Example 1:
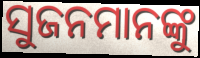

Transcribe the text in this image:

ସୁଜନମାନଙ୍କୁ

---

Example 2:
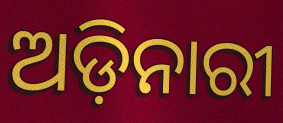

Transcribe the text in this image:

ଅଡ଼ିନାରୀ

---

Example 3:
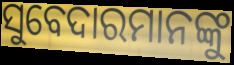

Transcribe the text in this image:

ସୁବେଦାରମାନଙ୍କୁ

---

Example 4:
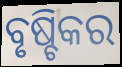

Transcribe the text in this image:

ବୃଷ୍ଚିକର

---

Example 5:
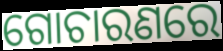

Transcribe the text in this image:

ଗୋଚାରଣରେ